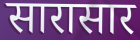
सारासार